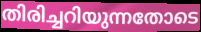
തിരിച്ചറിയുന്നതോടെ